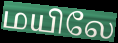
மயிலே